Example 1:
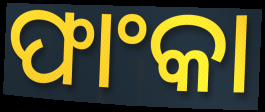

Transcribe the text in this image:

ଫାଂକା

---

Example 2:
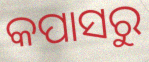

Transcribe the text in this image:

କପାସରୁ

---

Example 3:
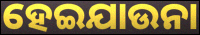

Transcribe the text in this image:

ହେଇଯାଉନା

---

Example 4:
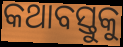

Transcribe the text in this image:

କଥାବସ୍ତୁକୁ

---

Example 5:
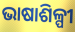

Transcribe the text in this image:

ଭାଷାଶିଳ୍ପୀ